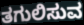
ತಗುಲಿಸುವ